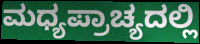
ಮಧ್ಯಪ್ರಾಚ್ಯದಲ್ಲಿ